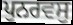
ਪੁਨਰਵਸੁ